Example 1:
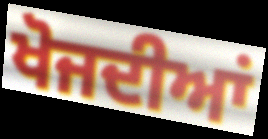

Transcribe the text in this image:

ਖੋਜਦੀਆਂ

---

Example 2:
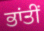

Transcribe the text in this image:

ਭਾਂਤੀਂ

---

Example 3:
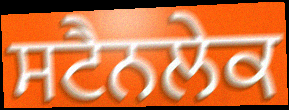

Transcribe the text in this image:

ਸਟੈਨਲੇਕ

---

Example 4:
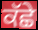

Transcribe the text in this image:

ਕੱਛੇ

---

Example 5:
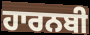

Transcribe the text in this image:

ਹਾਰਨਬੀ